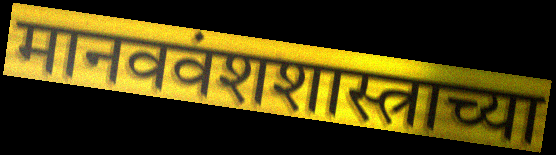
मानववंशशास्त्राच्या